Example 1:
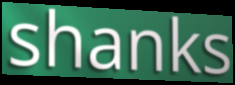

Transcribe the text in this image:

shanks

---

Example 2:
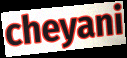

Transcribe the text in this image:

cheyani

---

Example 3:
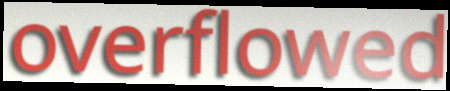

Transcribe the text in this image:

overflowed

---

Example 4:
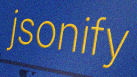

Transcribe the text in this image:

jsonify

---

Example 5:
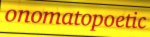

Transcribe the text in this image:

onomatopoetic